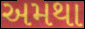
અમથા